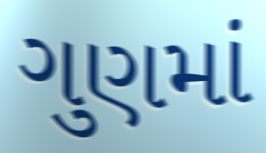
ગુણમાં